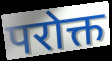
परोक्त